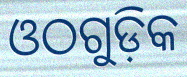
ଓଠଗୁଡ଼ିକ